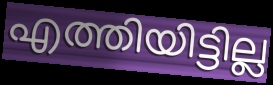
എത്തിയിട്ടില്ല